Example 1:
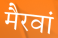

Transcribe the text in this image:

मैरवां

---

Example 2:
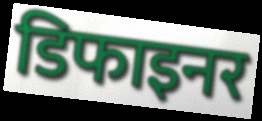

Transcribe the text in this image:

डिफाइनर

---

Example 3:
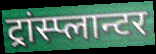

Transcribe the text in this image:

ट्रांस्प्लान्टर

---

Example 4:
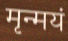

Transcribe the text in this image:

मृन्मयं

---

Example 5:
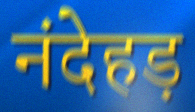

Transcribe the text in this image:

नंदेहड़